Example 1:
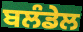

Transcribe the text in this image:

ਬਲੰਡੇਲ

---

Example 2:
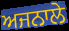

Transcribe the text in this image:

ਅਜਨਾਲੇ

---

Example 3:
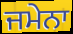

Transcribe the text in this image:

ਜਮੇਨਾ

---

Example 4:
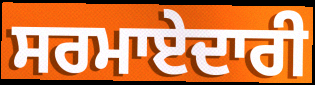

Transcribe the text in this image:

ਸਰਮਾਏਦਾਰੀ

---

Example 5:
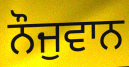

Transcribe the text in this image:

ਨੌਜੁਵਾਨ